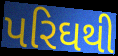
પરિઘથી